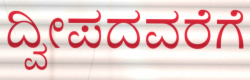
ದ್ವೀಪದವರೆಗೆ